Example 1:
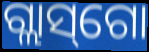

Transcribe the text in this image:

ଗ୍ଲାସ୍‌ଗୋ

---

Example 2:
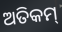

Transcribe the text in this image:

ଅତିକମ୍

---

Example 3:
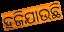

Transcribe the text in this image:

ହଜିଯାଉଛି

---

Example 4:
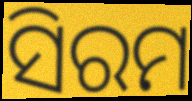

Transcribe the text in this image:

ସିରମ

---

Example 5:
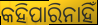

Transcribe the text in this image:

କହିପାରିନାହିଁ